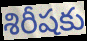
శిరీషకు